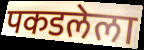
पकडलेला